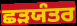
ਛੜਯੰਤਰ